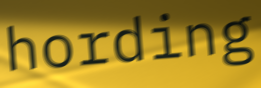
hording